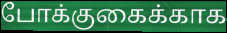
போக்குகைக்காக